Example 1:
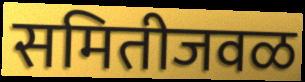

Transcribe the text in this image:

समितीजवळ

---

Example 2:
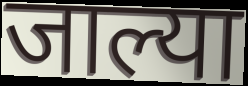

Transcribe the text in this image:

जाल्या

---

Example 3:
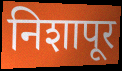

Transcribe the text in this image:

निशापूर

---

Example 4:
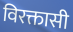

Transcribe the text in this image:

विरक्तासी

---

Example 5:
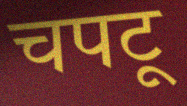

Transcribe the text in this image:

चपटू